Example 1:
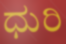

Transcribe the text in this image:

ಧುರಿ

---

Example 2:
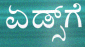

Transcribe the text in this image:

ಏಡ್ಸ್‌ಗೆ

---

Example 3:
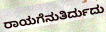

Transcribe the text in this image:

ರಾಯಗೆನುತಿರ್ದುದು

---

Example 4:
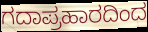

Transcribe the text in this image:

ಗದಾಪ್ರಹಾರದಿಂದ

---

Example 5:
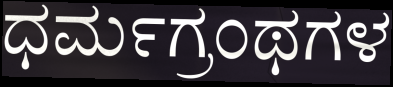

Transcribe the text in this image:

ಧರ್ಮಗ್ರಂಥಗಳ